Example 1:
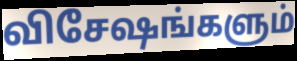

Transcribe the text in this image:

விசேஷங்களும்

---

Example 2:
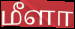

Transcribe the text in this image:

மீளா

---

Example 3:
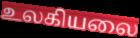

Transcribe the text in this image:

உலகியலை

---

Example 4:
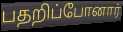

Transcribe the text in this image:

பதறிப்போனார்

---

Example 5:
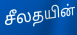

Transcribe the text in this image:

சீலதயின்